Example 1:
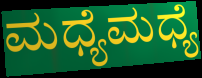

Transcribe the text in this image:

ಮಧ್ಯೆಮಧ್ಯೆ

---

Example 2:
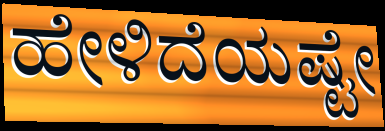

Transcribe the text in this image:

ಹೇಳಿದೆಯಷ್ಟೇ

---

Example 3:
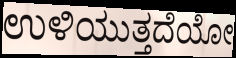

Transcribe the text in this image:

ಉಳಿಯುತ್ತದೆಯೋ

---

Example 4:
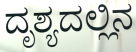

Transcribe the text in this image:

ದೃಶ್ಯದಲ್ಲಿನ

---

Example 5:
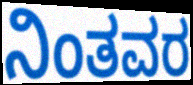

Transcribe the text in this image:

ನಿಂತವರ